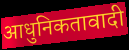
आधुनिकतावादी